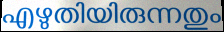
എഴുതിയിരുന്നതും